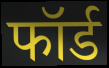
फॉर्ड